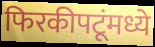
फिरकीपटूंमध्ये